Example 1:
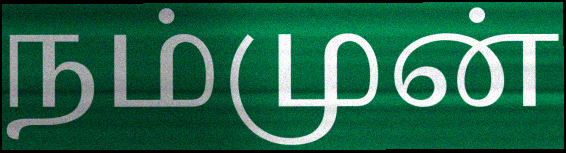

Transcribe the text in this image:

நம்முன்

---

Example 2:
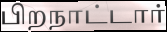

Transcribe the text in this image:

பிறநாட்டார்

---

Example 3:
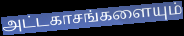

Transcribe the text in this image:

அட்டகாசங்களையும்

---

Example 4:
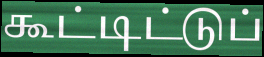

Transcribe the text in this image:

கூட்டிட்டுப்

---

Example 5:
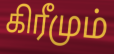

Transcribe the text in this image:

கிரீமும்